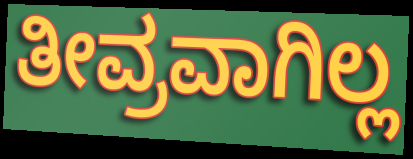
ತೀವ್ರವಾಗಿಲ್ಲ